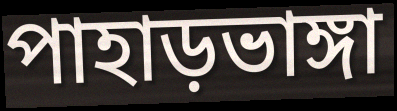
পাহাড়ভাঙ্গা